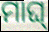
ମାଘ୍